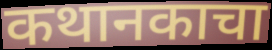
कथानकाचा